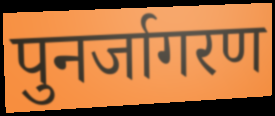
पुनर्जागरण